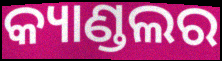
କ୍ୟାଣ୍ଡଲର